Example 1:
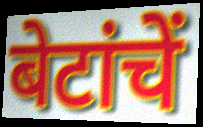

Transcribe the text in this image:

बेटांचें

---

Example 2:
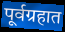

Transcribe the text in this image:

पूर्वग्रहात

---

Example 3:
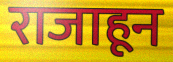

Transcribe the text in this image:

राजाहून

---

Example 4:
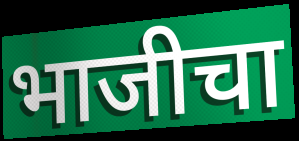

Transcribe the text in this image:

भाजीचा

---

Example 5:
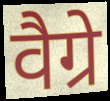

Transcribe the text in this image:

वैग्रे